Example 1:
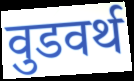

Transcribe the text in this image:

वुडवर्थ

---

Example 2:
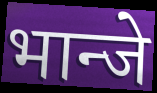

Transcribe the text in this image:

भान्जे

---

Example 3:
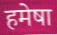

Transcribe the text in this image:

हमेषा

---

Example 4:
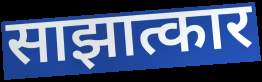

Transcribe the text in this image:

साझात्कार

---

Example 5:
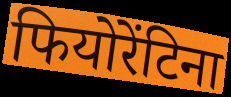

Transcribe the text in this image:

फियोरेंटिना